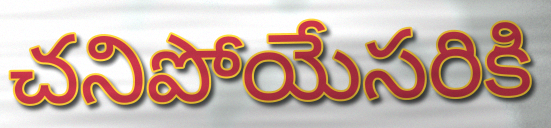
చనిపోయేసరికి